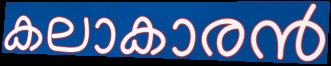
കലാകാരൻ